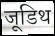
जूडिथ